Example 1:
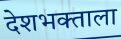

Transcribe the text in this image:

देशभक्ताला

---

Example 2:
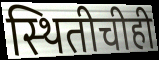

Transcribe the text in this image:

स्थितीचीही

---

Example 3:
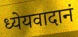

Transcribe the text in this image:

ध्येयवादानं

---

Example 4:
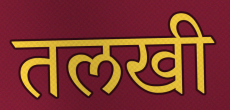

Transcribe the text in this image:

तलखी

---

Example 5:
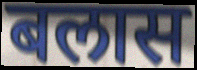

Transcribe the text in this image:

बलास